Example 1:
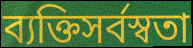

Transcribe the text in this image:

ব্যক্তিসর্বস্বতা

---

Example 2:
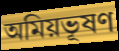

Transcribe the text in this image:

অমিয়ভূষণ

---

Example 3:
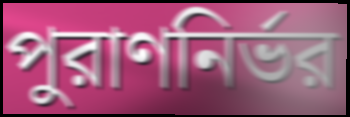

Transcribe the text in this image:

পুরাণনির্ভর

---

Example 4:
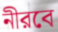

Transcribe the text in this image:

নীরবে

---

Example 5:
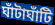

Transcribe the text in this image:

ঘাঁটাঘাঁটি